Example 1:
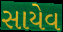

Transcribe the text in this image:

સાયેવ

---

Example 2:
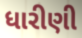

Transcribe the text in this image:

ધારીણી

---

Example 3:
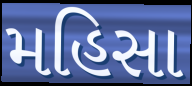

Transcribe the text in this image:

મહિસા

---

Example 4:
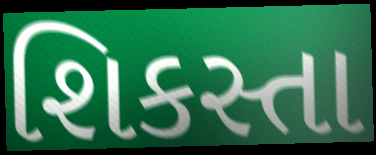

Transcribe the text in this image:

શિકસ્તા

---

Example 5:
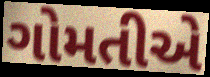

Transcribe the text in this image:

ગોમતીએ